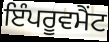
ਇੰਪਰੂਵਮੈਂਟ